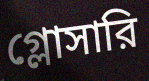
গ্লোসারি